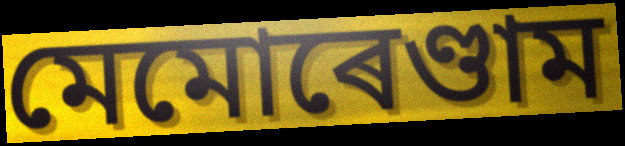
মেমোৰেণ্ডাম